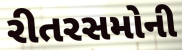
રીતરસમોની